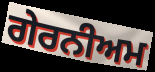
ਗੇਰਨੀਅਮ